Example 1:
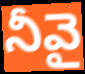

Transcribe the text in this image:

నీవై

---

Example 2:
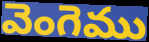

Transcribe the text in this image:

వెంగెము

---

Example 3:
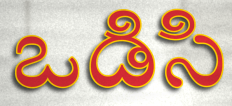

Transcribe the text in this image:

ఒడిసి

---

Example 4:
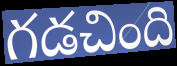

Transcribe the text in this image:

గడచింది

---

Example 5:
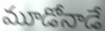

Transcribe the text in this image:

మూడోనాడే